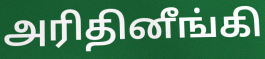
அரிதினீங்கி